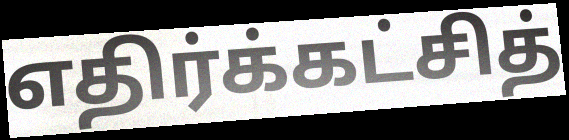
எதிர்க்கட்சித்